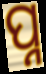
ପ୍ନ